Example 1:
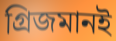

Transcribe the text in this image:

গ্রিজমানই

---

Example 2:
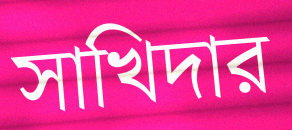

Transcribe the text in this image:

সাখিদার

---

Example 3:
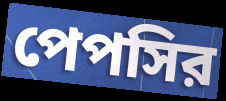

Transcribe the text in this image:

পেপসির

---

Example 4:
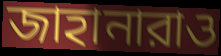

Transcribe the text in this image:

জাহানারাও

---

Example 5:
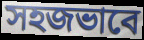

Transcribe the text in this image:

সহজভাবে